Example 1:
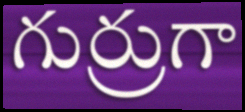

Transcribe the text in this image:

గుర్రుగా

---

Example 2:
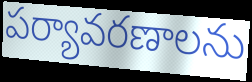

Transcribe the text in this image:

పర్యావరణాలను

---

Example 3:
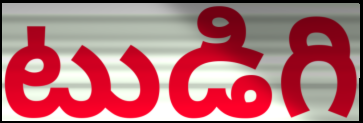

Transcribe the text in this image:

టుడిగి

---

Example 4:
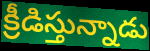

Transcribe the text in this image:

క్రీడిస్తున్నాడు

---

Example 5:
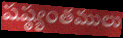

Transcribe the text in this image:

షష్ఠ్యంతములు